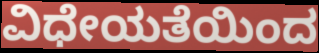
ವಿಧೇಯತೆಯಿಂದ